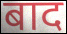
बाद